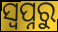
ସ୍ୱପ୍ନରୁ